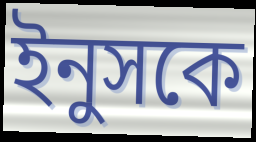
ইনুসকে